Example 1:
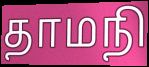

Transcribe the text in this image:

தாமநி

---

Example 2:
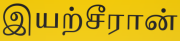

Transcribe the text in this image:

இயற்சீரான்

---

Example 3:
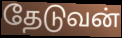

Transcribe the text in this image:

தேடுவன்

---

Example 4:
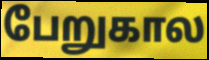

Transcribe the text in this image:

பேறுகால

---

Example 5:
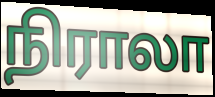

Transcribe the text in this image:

நிராலா